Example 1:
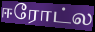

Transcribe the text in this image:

ஈரோட்ல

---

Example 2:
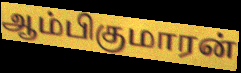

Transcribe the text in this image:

ஆம்பிகுமாரன்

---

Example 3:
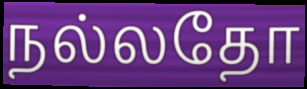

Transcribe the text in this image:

நல்லதோ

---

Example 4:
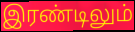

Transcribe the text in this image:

இரண்டிலும்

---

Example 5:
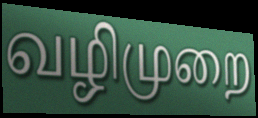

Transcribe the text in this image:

வழிமுறை